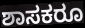
ಶಾಸಕರೂ